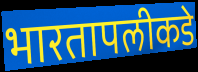
भारतापलीकडे